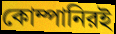
কোম্পানিরই